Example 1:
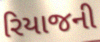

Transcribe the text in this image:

રિયાજની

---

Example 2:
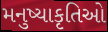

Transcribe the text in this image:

મનુષ્યાકૃતિઓ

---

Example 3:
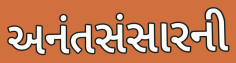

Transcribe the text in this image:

અનંતસંસારની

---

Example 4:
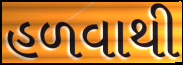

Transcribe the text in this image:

હળવાથી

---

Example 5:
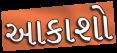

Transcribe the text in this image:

આકાશો